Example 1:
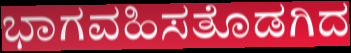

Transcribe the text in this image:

ಭಾಗವಹಿಸತೊಡಗಿದ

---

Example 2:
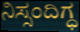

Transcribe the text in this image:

ನಿಸ್ಸಂದಿಗ್ಧ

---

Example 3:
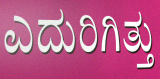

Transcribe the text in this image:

ಎದುರಿಗಿತ್ತು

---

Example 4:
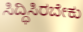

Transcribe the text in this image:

ಸಿದ್ಧಿಸಿರಬೇಕು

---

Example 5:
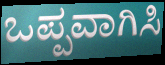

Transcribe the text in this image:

ಒಪ್ಪವಾಗಿಸಿ